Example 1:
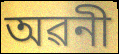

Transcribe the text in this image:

অৱনী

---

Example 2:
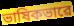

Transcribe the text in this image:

ভাষিকভাৱে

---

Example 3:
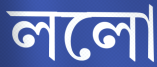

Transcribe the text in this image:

ললো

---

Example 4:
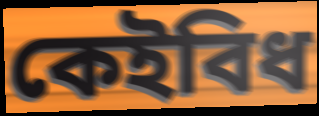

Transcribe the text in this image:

কেইবিধ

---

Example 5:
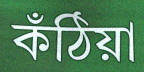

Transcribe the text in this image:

কঁঠিয়া